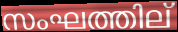
സംഘത്തില്